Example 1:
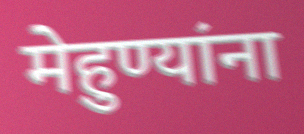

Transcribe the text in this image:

मेहुण्यांना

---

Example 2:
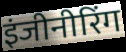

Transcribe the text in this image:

इंजीनीरिंग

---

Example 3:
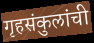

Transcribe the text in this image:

गृहसंकुलांची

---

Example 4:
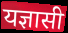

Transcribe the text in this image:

यज्ञासी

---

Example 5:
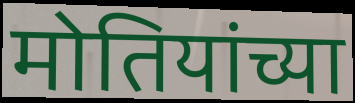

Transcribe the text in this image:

मोतियांच्या